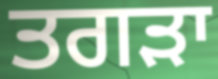
ਤਗੜਾ